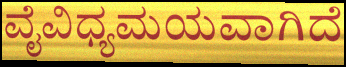
ವೈವಿಧ್ಯಮಯವಾಗಿದೆ